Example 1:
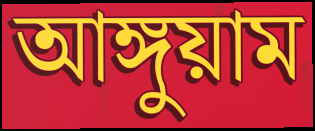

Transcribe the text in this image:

আঙ্গুয়াম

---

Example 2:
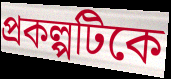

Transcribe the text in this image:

প্রকল্পটিকে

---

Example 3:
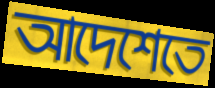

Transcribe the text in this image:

আদেশেতে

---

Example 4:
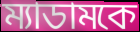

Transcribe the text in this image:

ম্যাডামকে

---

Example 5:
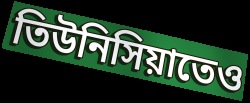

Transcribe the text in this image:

তিউনিসিয়াতেও